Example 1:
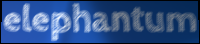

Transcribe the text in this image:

elephantum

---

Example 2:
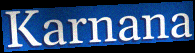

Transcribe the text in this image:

Karnana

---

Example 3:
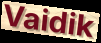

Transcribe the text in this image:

Vaidik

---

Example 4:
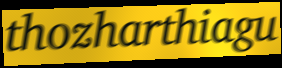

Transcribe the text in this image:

thozharthiagu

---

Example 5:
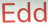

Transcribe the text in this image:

Edd